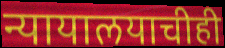
न्यायालयाचीही